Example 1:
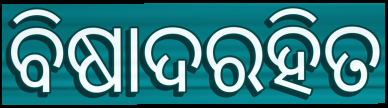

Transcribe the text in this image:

ବିଷାଦରହିତ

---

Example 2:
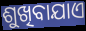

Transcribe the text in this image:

ଶୁଖିବାଯାଏ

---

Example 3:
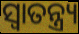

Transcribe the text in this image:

ସ୍ଵାତନ୍ତ୍ର୍ୟ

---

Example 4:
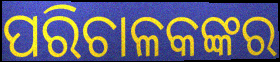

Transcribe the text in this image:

ପରିଚାଳକଙ୍କର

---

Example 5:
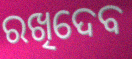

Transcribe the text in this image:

ରଖିଦେବ